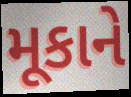
મૂકાને